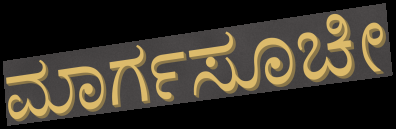
ಮಾರ್ಗಸೂಚೀ